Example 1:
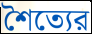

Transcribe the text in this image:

শৈত্যের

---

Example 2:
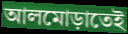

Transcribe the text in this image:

আলমোড়াতেই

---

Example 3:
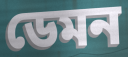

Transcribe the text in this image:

ডেমন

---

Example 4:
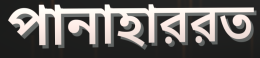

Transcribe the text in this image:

পানাহাররত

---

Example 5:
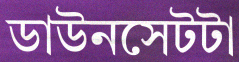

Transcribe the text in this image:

ডাউনসেটটা